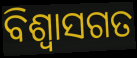
ବିଶ୍ଵାସଗତ